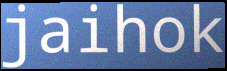
jaihok